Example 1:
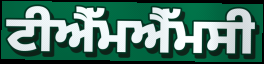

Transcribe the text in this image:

ਟੀਐੱਮਐੱਮਸੀ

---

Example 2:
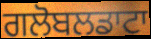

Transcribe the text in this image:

ਗਲੋਬਲਡਾਟਾ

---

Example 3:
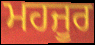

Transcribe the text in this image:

ਮਹਜੂਰ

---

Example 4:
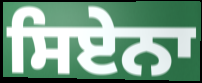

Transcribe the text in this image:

ਸਿਏਨਾ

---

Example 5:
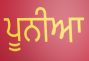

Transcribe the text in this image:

ਪੂਨੀਆ